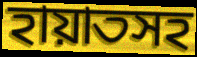
হায়াতসহ